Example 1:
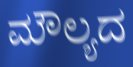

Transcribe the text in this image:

ಮೌಲ್ಯದ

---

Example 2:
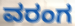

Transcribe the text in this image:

ವರಂಗ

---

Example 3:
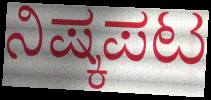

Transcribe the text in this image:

ನಿಷ್ಕಪಟ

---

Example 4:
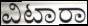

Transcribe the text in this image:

ವಿಟಾರಾ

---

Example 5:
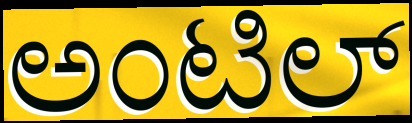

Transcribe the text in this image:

ಅಂಟಿಲ್